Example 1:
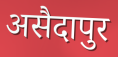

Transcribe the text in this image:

असैदापुर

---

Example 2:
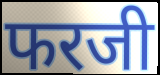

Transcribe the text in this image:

फरजी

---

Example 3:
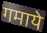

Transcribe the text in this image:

गमाये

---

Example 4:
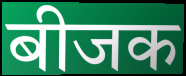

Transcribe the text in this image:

बीजक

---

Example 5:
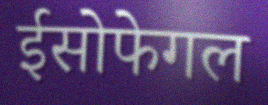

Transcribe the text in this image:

ईसोफेगल